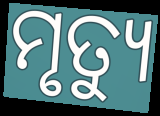
ମୃତ୍ୟୁ